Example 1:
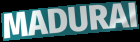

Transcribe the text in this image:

MADURAI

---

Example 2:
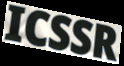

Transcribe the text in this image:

ICSSR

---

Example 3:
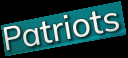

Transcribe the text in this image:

Patriots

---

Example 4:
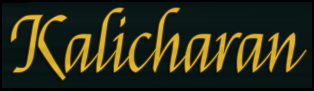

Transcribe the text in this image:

Kalicharan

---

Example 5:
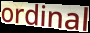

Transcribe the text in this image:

ordinal